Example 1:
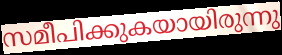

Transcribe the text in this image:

സമീപിക്കുകയായിരുന്നു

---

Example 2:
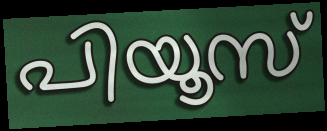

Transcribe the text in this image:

പിയൂസ്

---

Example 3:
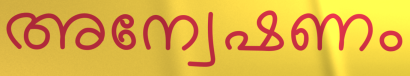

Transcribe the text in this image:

അന്വേഷണം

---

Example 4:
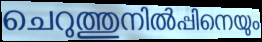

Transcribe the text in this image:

ചെറുത്തുനിൽപ്പിനെയും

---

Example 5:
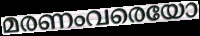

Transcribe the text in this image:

മരണംവരെയോ